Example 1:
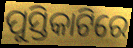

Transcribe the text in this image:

ପୁସ୍ତିକାଟିରେ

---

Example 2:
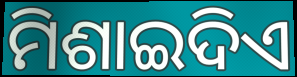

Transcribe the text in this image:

ମିଶାଇଦିଏ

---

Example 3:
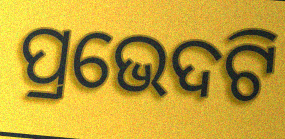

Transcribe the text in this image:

ପ୍ରଭେଦଟି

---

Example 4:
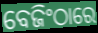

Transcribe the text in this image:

ବେଜିଂଠାରେ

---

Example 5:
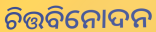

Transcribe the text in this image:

ଚିତ୍ତବିନୋଦନ